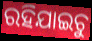
ରହିଯାଇଚୁ